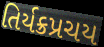
તિર્યક્રપ્રચય